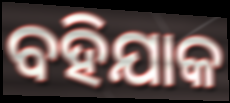
ବହିଯାକ